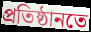
প্ৰতিষ্ঠানতে